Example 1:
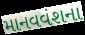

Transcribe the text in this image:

માનવવંશના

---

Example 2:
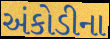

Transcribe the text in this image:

અંકોડીના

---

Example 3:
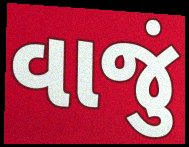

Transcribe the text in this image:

વાજું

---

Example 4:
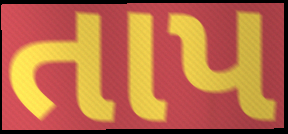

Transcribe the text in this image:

તાપ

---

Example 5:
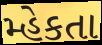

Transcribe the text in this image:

મ્હેકતા